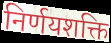
निर्णयशक्ति